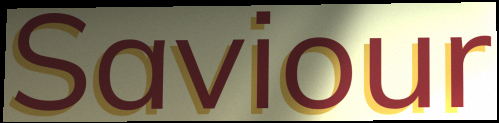
Saviour